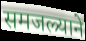
समजल्याने